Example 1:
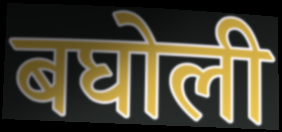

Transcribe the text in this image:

बघोली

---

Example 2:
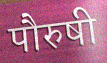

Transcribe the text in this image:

पौरुषी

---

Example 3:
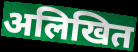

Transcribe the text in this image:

अलिखित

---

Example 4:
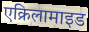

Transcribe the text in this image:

एक्रिलामाइड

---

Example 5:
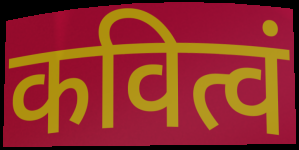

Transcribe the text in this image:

कवित्वं